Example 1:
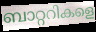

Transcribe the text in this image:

ബാറ്ററികളെ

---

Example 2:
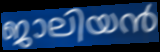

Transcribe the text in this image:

ജാലിയൻ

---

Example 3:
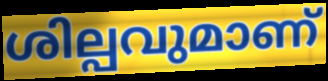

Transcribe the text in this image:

ശില്പവുമാണ്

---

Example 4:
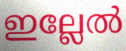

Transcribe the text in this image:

ഇല്ലേൽ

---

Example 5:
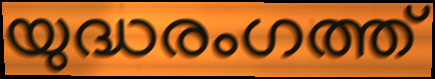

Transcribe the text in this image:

യുദ്ധരംഗത്ത്